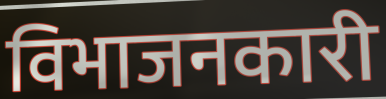
विभाजनकारी